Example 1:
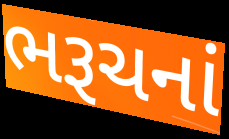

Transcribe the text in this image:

ભરૂચનાં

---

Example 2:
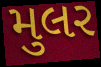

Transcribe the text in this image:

મુલર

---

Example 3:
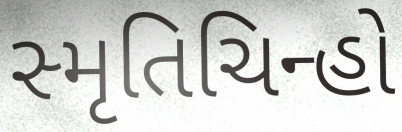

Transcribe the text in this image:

સ્મૃતિચિન્હો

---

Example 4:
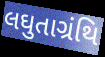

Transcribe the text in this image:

લઘુતાગ્રંથિ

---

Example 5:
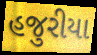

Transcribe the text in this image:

હજુરીયા